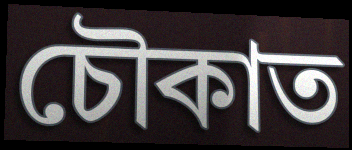
চৌকাত